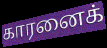
காரனைக்